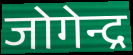
जोगेन्द्र